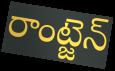
రాంట్జెన్